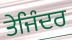
ਤੇਜਿੰਦਰ